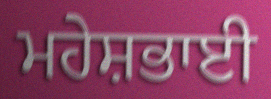
ਮਹੇਸ਼ਭਾਈ